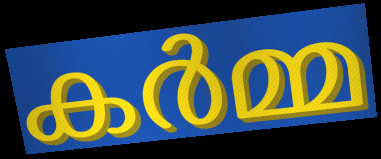
കർമ്മ